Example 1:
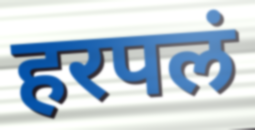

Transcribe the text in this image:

हरपलं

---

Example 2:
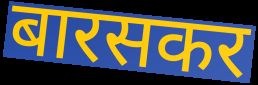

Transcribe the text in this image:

बारसकर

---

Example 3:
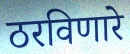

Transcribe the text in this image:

ठरविणारे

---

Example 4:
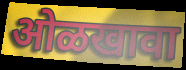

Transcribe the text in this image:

ओळखावा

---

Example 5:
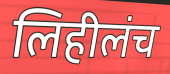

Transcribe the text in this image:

लिहीलंच